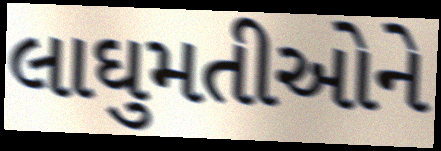
લાઘુમતીઓને